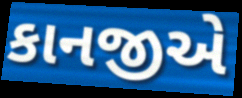
કાનજીએ